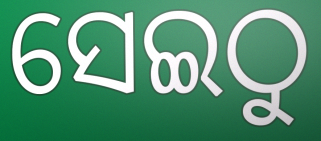
ସେଇଠୁ